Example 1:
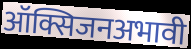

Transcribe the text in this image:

ऑक्सिजनअभावी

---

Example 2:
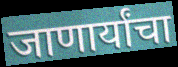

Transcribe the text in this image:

जाणार्यांचा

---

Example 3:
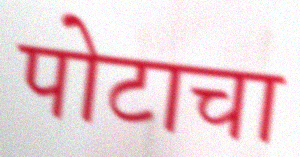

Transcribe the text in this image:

पोटाचा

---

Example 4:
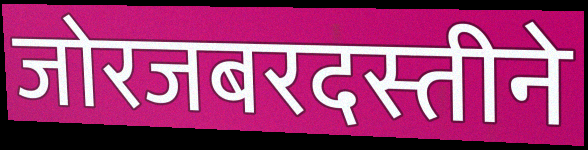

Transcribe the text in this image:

जोरजबरदस्तीने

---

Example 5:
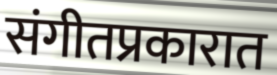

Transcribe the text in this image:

संगीतप्रकारात